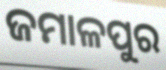
ଜମାଳପୁର